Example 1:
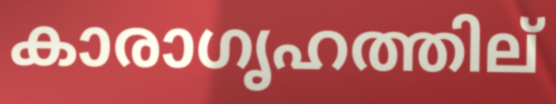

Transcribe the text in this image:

കാരാഗൃഹത്തില്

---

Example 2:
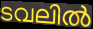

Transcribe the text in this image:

ടവലിൽ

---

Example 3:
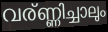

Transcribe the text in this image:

വര്ണ്ണിച്ചാലും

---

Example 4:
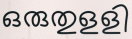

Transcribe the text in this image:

ഒരുതുളളി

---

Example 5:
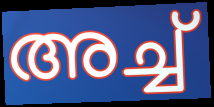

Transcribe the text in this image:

അച്ച്